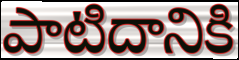
పాటిదానికి